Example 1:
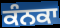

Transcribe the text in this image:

ਕੰਨਕਾ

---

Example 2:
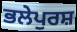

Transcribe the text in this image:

ਭਲੇਪੁਰਸ਼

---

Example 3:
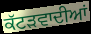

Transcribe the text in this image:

ਕੱਟੜਵਾਦੀਆਂ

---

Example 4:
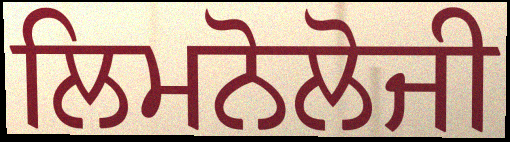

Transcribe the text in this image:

ਲਿਮਨੋਲੋਜੀ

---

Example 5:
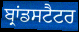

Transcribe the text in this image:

ਬ੍ਰਾਂਡਸਟੈਟਰ